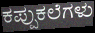
ಕಪ್ಪುಕಲೆಗಳು